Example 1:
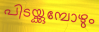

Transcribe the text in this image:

പിടയ്ക്കുമ്പോഴും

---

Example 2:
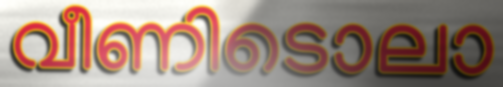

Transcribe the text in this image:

വീണിടൊലാ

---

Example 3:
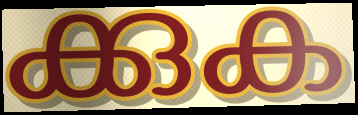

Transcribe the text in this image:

ക്കുക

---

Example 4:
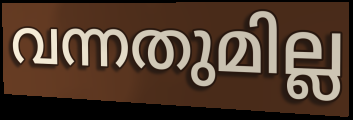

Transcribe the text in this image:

വന്നതുമില്ല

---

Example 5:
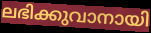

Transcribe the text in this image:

ലഭിക്കുവാനായി